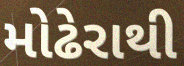
મોઢેરાથી